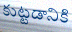
కుట్టడానికి